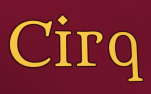
Cirq